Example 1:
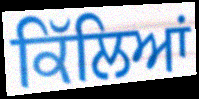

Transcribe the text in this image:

ਕਿੱਲਿਆਂ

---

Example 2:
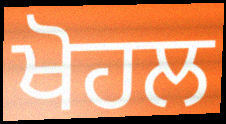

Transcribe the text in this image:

ਖੋਹਲ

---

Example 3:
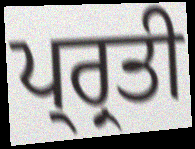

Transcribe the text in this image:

ਪ੍ਰ੍ਰਤੀ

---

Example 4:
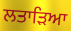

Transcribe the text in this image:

ਲਤਾੜਿਆ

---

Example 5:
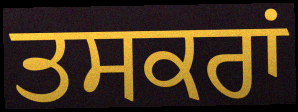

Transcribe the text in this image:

ਤਸਕਰਾਂ